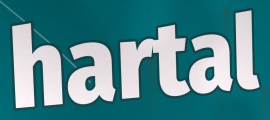
hartal